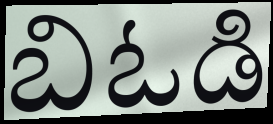
బిఓడి